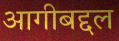
आगीबद्दल